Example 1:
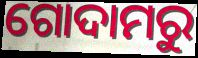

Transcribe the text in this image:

ଗୋଦାମରୁ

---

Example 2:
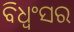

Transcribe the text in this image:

ବିଧ୍ୱଂସର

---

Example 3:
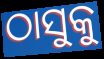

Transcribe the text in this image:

ଠାସୁକୁ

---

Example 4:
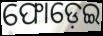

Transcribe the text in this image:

ଫୋଡ଼େଇ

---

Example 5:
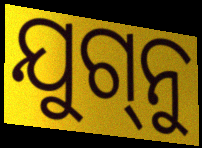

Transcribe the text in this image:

ଯୁଗ୍‌ନୁ